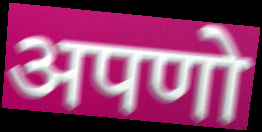
अपणो